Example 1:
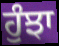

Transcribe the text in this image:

ਹੁੰਝਾ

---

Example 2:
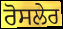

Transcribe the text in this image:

ਰੋਸਲੇਰ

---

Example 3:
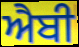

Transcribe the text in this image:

ਐਬੀ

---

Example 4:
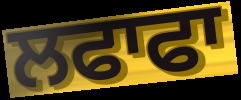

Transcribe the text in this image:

ਲਫਾਫਾ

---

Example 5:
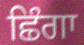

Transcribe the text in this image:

ਛਿੰਗਾ